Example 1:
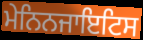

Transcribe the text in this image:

ਮੇਨਿਨਜਾਇਟਿਸ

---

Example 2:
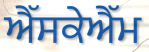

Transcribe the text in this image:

ਐੱਸਕੇਐੱਮ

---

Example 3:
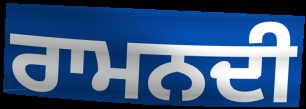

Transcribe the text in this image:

ਰਾਮਨਦੀ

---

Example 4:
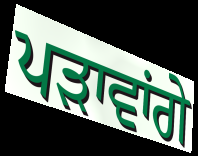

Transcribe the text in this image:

ਪੜਾਵਾਂਗੇ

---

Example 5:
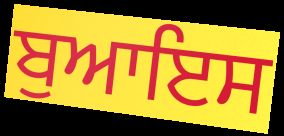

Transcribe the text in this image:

ਬੁਆਇਸ